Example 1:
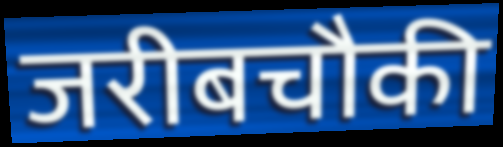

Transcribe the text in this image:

जरीबचौकी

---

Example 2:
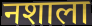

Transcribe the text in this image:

नशाला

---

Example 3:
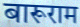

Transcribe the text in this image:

बारूराम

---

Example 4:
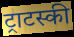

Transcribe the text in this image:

ट्राटस्की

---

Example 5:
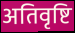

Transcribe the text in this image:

अतिवृष्टि